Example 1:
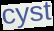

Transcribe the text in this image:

cyst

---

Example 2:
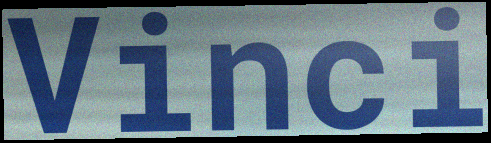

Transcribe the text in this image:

Vinci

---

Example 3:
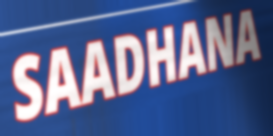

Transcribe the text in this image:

SAADHANA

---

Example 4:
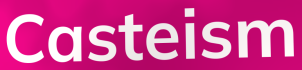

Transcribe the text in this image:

Casteism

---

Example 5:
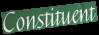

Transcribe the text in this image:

Constituent